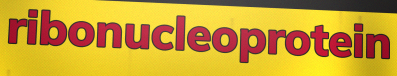
ribonucleoprotein